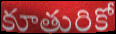
కూతురికో